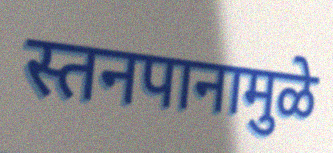
स्तनपानामुळे